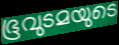
ഭൂവുടമയുടെ